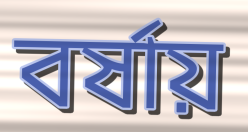
বর্ষায়